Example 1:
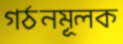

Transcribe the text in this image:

গঠনমূলক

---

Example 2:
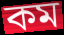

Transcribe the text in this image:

কম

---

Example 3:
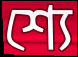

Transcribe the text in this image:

শ্যে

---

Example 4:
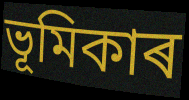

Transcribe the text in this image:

ভূমিকাৰ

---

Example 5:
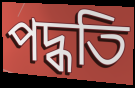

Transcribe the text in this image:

পদ্ধতি